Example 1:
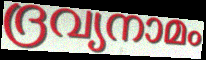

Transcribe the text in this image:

ദ്രവ്യനാമം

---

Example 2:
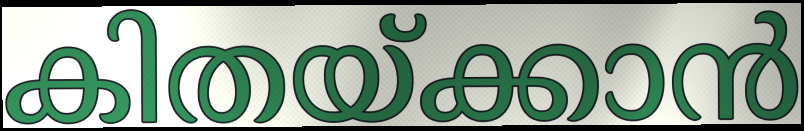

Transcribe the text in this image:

കിതയ്ക്കാൻ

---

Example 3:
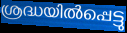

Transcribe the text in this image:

ശ്രദ്ധയിൽപ്പെട്ടു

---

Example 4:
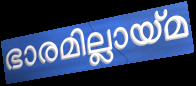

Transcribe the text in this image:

ഭാരമില്ലായ്മ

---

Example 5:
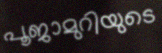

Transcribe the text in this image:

പൂജാമുറിയുടെ